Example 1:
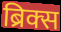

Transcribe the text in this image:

ब्रिक्‍स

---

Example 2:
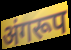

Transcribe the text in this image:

अंगरूप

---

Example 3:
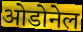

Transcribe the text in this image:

ओडोनेल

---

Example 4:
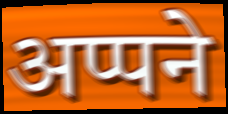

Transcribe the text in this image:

अप्पने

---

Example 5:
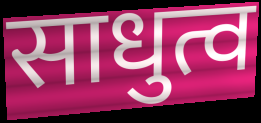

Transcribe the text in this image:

साधुत्व